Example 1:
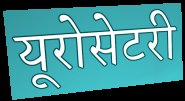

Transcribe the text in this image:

यूरोसेटरी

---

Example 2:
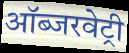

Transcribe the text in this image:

ऑब्जरवेट्री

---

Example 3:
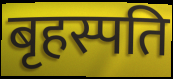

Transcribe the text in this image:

बृहस्‍पति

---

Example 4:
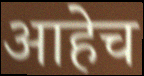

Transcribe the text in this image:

आहेच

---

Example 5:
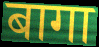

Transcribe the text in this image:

बागा